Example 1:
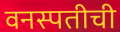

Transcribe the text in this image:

वनस्पतीची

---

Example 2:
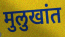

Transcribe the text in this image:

मुलुखांत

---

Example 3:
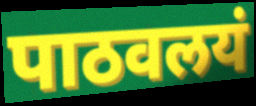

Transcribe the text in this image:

पाठवलयं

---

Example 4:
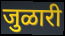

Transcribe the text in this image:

जुळारी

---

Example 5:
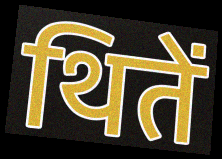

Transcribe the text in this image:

थितें